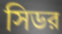
সিডর